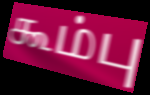
கூம்பு